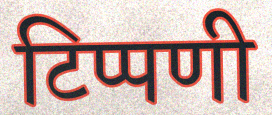
टिप्पणी